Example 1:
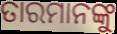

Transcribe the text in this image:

ତାରମାନଙ୍କୁ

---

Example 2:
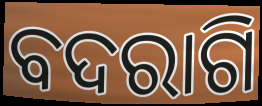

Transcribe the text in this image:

ବଦରାଗି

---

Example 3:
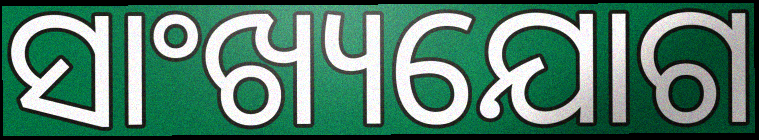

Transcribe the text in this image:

ସାଂଖ୍ୟଯୋଗ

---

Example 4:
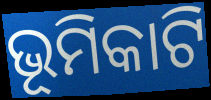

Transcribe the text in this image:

ଭୂମିକାଟି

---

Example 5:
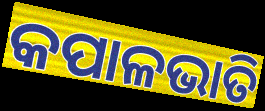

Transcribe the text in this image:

କପାଳଭାତି